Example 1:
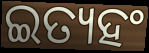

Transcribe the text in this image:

ଇତ୍ୟହଂ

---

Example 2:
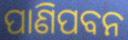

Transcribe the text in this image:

ପାଣିପବନ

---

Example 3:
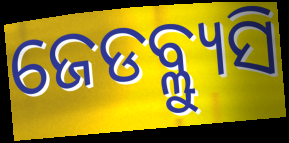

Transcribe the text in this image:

ଜେଡବ୍ଲ୍ୟୁସି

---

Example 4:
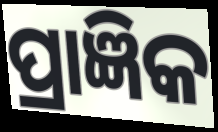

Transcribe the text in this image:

ପ୍ରାଜ୍ଞିକ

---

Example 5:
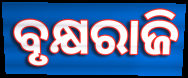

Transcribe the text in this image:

ବୃକ୍ଷରାଜି